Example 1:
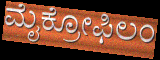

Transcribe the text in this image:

ಮೈಕ್ರೋಫಿಲಂ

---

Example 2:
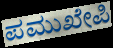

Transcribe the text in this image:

ಪಮುಖೇಪಿ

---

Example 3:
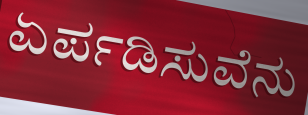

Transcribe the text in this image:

ಏರ್ಪಡಿಸುವೆನು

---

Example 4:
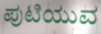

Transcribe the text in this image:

ಪುಟಿಯುವ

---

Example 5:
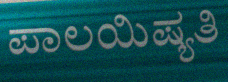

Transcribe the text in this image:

ಪಾಲಯಿಷ್ಯತಿ